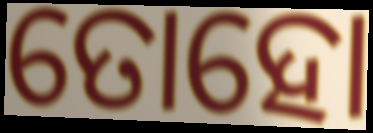
ତୋହୋ